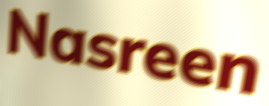
Nasreen